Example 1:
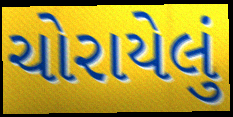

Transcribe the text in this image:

ચોરાયેલું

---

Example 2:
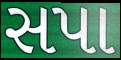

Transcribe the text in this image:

સપા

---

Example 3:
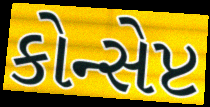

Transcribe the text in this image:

કોન્સેપ્ટ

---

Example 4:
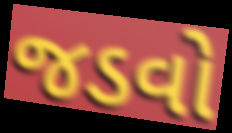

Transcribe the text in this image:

જડવો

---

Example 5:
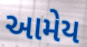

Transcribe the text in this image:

આમેય